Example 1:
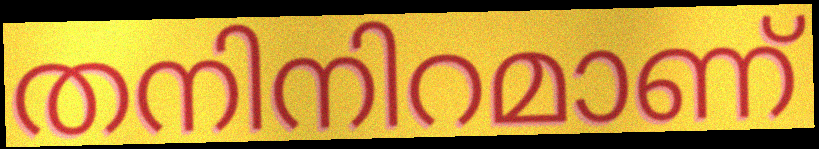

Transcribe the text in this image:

തനിനിറമാണ്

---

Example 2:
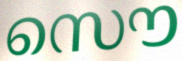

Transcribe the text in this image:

സൌ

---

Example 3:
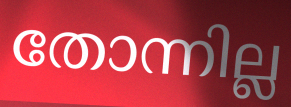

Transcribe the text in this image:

തോന്നില്ല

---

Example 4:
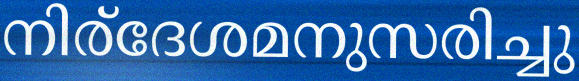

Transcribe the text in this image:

നിര്ദേശമനുസരിച്ചു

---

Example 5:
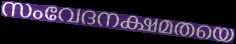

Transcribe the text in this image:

സംവേദനക്ഷമതയെ